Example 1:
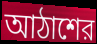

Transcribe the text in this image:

আঠাশের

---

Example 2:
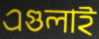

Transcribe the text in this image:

এগুলাই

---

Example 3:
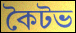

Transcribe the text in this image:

কৈটভ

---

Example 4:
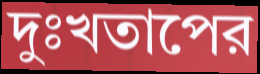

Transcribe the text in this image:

দুঃখতাপের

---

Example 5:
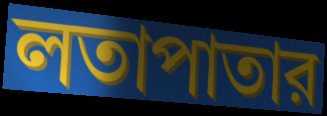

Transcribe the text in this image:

লতাপাতার